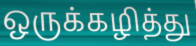
ஒருக்கழித்து